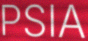
PSIA